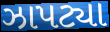
ઝાપટ્યા